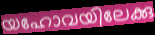
യഹോവയിലേക്കു